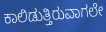
ಕಾಲಿಡುತ್ತಿರುವಾಗಲೇ